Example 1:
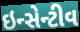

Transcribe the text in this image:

ઇન્સેન્ટીવ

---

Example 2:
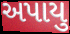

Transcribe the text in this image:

અપાયુ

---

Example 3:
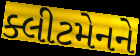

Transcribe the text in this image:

ક્લીટમેનને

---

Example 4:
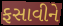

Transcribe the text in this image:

ફસાવીને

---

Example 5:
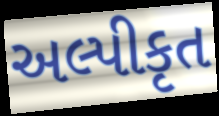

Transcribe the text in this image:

અલ્પીકૃત